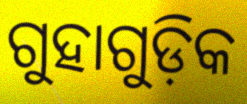
ଗୁହାଗୁଡ଼ିକ